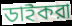
ডাইকরা